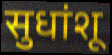
सुधांशू